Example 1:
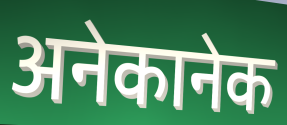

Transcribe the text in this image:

अनेकानेक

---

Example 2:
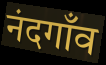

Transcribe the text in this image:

नंदगाँव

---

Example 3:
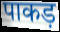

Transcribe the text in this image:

पाकड़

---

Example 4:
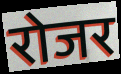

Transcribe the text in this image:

रोजर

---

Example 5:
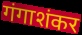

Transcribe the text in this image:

गंगाशंकर